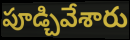
పూడ్చివేశారు